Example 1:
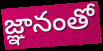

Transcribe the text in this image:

జ్ఞానంతో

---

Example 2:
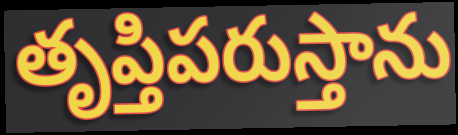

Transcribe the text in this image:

తృప్తిపరుస్తాను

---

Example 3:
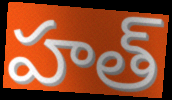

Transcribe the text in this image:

హత్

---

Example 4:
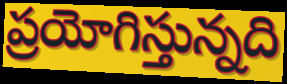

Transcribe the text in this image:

ప్రయోగిస్తున్నది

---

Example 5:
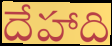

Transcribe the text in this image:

దేహాది